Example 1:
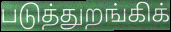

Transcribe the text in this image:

படுத்துறங்கிக்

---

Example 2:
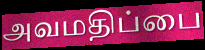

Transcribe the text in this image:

அவமதிப்பை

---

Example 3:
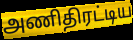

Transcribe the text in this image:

அணிதிரட்டிய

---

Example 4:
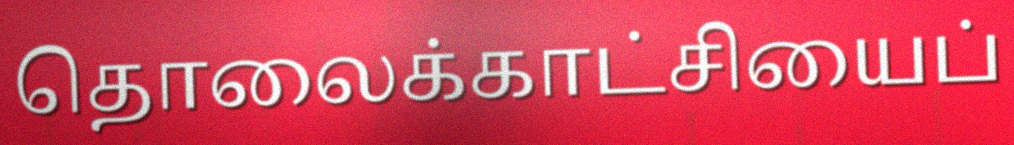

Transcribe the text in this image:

தொலைக்காட்சியைப்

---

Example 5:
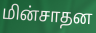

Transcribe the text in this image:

மின்சாதன